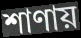
শাণায়